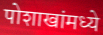
पोशाखांमध्ये